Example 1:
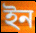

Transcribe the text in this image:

ইন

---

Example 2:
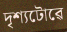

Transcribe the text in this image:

দৃশ্যটোৱে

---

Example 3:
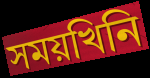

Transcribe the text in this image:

সময়খিনি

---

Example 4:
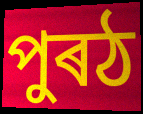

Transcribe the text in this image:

পুৰঠ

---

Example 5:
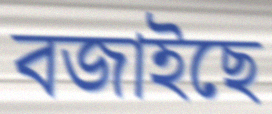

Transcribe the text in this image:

বজাইছে